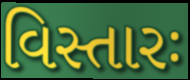
વિસ્તારઃ